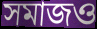
সমাজও